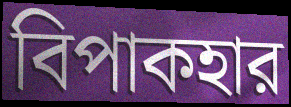
বিপাকহার